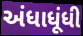
અંધાધૂંધી